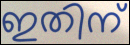
ഇതിന്